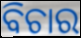
ବିଚାର